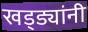
खड्ड्यांनी